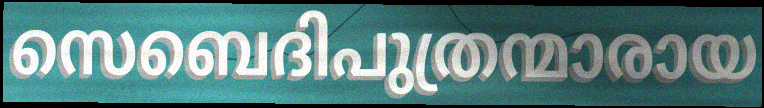
സെബെദിപുത്രന്മാരായ